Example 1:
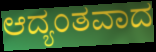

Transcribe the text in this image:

ಆದ್ಯಂತವಾದ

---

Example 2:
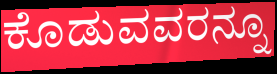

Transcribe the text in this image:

ಕೊಡುವವರನ್ನೂ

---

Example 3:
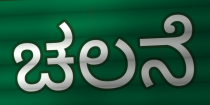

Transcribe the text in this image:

ಚಲನೆ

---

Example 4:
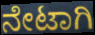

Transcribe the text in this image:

ನೇಟಾಗಿ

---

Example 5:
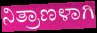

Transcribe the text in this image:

ನಿತ್ರಾಣಳಾಗಿ